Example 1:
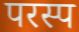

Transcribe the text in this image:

परस्प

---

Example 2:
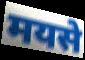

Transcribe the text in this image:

मयसे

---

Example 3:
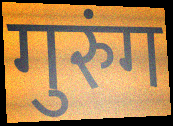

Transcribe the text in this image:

गुरुंग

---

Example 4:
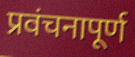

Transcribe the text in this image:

प्रवंचनापूर्ण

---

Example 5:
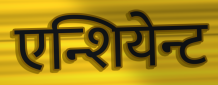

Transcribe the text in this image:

एन्शियेन्ट